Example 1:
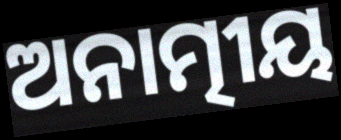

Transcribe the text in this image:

ଅନାତ୍ମୀୟ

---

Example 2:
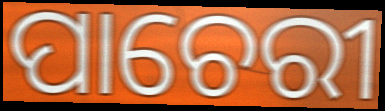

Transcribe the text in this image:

ପାଚେରୀ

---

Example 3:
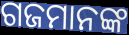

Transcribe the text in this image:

ଗଜମାନଙ୍କ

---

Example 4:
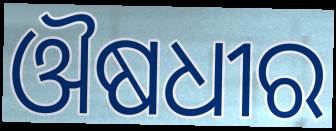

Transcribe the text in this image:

ଔଷଧୀର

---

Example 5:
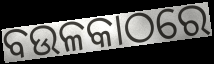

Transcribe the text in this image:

ବଉଳକାଠରେ